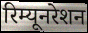
रिम्यूनरेशन